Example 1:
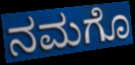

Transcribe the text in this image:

ನಮಗೊ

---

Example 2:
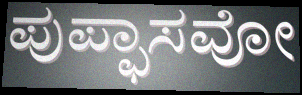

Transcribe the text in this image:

ಪುಪ್ಫಾಸವೋ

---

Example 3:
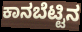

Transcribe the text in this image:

ಕಾನಬೆಟ್ಟಿನ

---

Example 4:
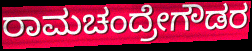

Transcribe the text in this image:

ರಾಮಚಂದ್ರೇಗೌಡರ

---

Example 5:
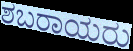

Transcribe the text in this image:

ಶಬರಾಯರು